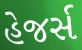
હેજર્સ